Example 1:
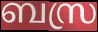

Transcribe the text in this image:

ബസ്ര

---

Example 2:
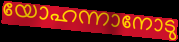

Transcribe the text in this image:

യോഹന്നാനോടു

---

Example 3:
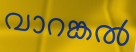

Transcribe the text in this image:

വാറങ്കൽ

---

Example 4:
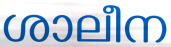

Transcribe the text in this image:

ശാലീന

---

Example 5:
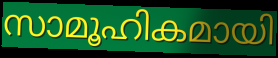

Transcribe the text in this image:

സാമൂഹികമായി